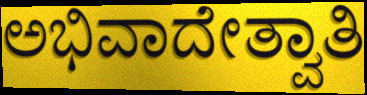
ಅಭಿವಾದೇತ್ವಾತಿ